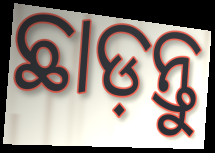
ଛାଡ଼ନ୍ତୁ